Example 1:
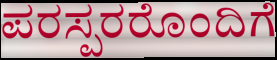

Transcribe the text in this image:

ಪರಸ್ಪರರೊಂದಿಗೆ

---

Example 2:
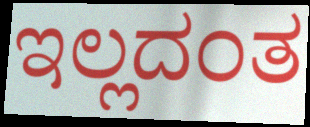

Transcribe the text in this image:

ಇಲ್ಲದಂತ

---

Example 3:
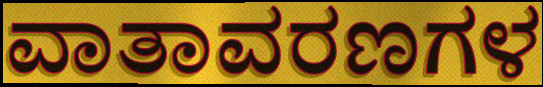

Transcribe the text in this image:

ವಾತಾವರಣಗಳ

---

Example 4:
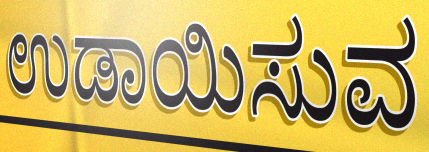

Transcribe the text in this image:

ಉಡಾಯಿಸುವ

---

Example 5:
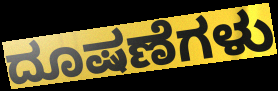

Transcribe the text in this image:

ದೂಷಣೆಗಳು